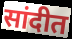
सांदीत